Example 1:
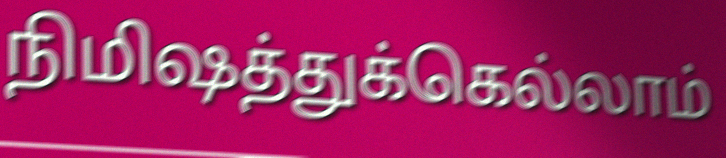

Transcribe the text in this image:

நிமிஷத்துக்கெல்லாம்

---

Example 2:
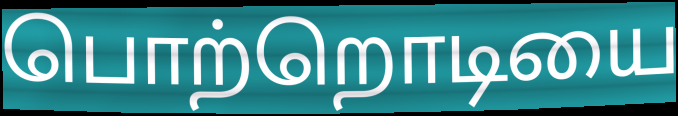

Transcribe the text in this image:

பொற்றொடியை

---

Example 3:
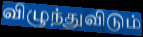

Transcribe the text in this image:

விழுந்துவிடும்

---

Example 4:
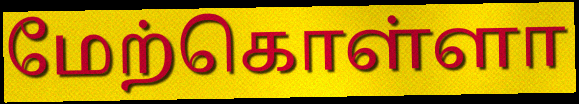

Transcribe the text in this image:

மேற்கொள்ளா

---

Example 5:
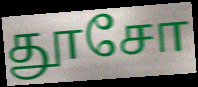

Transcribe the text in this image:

தூசோ